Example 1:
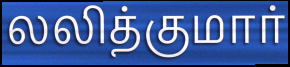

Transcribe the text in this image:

லலித்குமார்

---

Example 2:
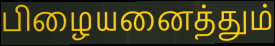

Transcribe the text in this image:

பிழையனைத்தும்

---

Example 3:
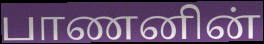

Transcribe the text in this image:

பாணனின்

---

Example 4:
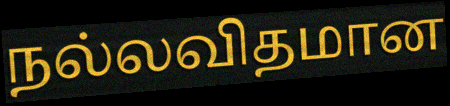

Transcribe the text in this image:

நல்லவிதமான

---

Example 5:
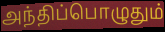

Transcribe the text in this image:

அந்திப்பொழுதும்